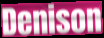
Denison